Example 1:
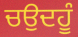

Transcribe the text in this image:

ਚਉਦਹੂੰ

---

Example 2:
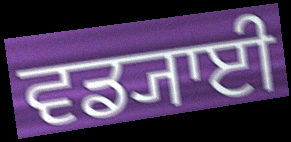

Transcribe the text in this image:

ਵਡ੍ਯਾਈ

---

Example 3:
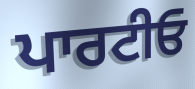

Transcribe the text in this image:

ਪਾਰਟੀਓ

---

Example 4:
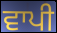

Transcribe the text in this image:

ਵਾਪੀ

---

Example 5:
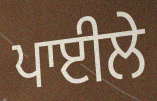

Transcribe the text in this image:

ਪਾਈਲੇ